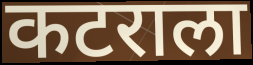
कटराला